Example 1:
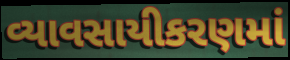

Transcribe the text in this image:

વ્યાવસાયીકરણમાં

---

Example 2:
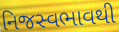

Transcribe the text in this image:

નિજસ્વભાવથી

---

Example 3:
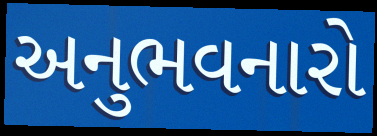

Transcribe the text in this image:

અનુભવનારો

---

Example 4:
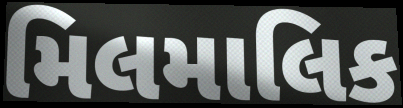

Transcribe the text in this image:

મિલમાલિક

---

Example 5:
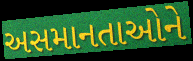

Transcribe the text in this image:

અસમાનતાઓને